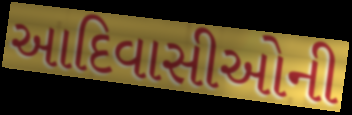
આદિવાસીઓની